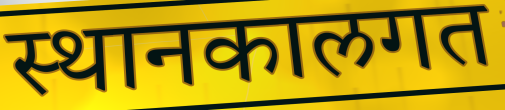
स्थानकालगत